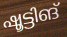
ഷൂട്ടിങ്